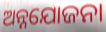
ଅନ୍ନଯୋଜନା